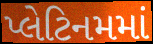
પ્લેટિનમમાં